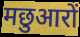
मछुआरों